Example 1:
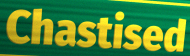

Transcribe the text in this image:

Chastised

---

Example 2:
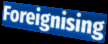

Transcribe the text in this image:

Foreignising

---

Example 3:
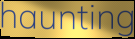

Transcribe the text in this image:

haunting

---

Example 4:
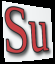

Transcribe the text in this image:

Su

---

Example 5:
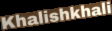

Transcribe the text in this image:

Khalishkhali